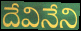
దేవినేని